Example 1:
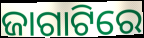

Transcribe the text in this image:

ଜାଗାଟିରେ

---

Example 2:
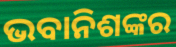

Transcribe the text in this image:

ଭବାନିଶଙ୍କର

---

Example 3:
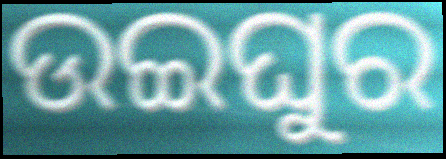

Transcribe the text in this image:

ଉଇଘୁର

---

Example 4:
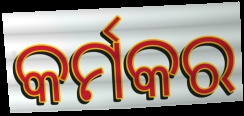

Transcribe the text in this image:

କର୍ମକର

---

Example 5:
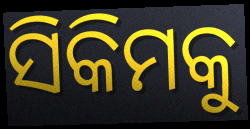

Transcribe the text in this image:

ସିକିମକୁ